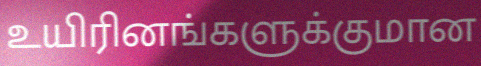
உயிரினங்களுக்குமான